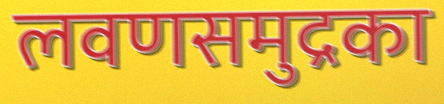
लवणसमुद्रका